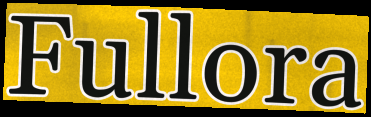
Fullora